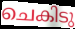
ചെകിടു